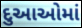
દુઆઓમાં